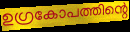
ഉഗ്രകോപത്തിന്റെ